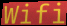
Wifi